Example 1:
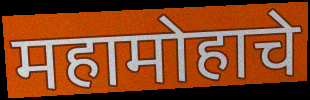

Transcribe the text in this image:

महामोहाचे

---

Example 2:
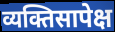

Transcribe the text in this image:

व्यक्तिसापेक्ष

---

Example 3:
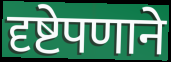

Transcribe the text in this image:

दृष्टेपणाने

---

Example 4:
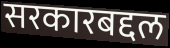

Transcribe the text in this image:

सरकारबद्दल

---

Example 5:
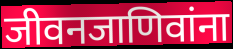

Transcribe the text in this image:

जीवनजाणिवांना